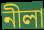
নীলা